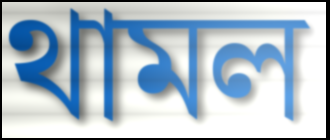
থামল